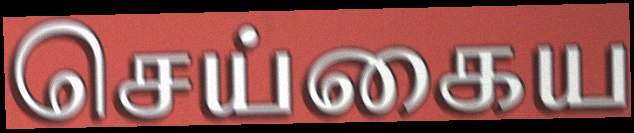
செய்கைய